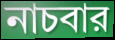
নাচবার